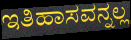
ಇತಿಹಾಸವನ್ನಲ್ಲ